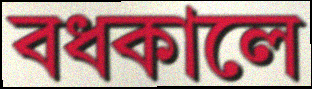
বধকালে